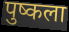
पुष्कला